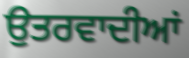
ਉਤਰਵਾਦੀਆਂ